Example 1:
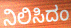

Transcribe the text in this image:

ನಿಲಿಸಿದಂ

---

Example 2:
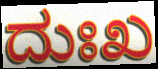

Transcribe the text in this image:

ದುಃಖ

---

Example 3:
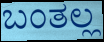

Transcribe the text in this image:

ಬಂತಲ್ಲ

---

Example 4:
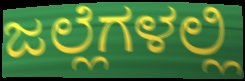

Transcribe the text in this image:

ಜಲ್ಲೆಗಳಲ್ಲಿ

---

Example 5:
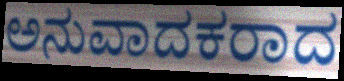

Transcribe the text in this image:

ಅನುವಾದಕರಾದ